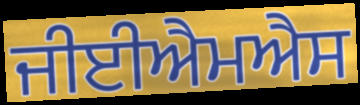
ਜੀਈਐਮਐਸ